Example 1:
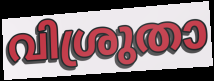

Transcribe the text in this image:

വിശ്രുതാ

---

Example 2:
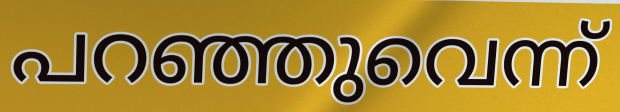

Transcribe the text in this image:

പറഞ്ഞുവെന്ന്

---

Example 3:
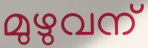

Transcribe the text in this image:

മുഴുവന്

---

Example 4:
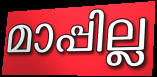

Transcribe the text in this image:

മാപ്പില്ല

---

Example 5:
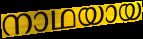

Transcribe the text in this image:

നാഥയായ